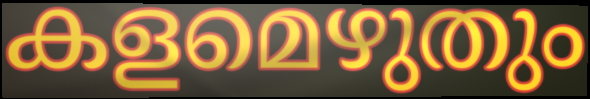
കളമെഴുതും